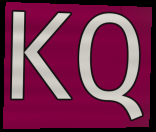
KQ